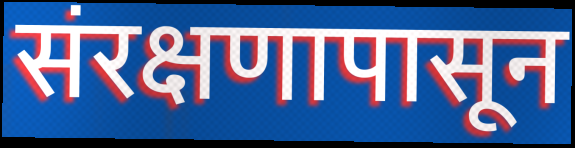
संरक्षणापासून